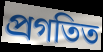
প্ৰগতিত